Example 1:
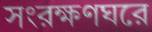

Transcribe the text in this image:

সংরক্ষণঘরে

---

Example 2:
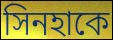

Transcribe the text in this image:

সিনহাকে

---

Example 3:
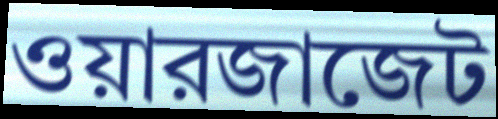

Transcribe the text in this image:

ওয়ারজাজেট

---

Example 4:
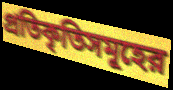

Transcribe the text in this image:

প্রতিকৃতিসমূহের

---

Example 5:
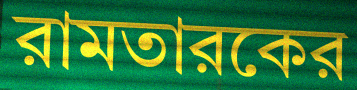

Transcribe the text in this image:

রামতারকের